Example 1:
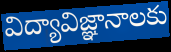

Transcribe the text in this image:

విద్యావిజ్ఞానాలకు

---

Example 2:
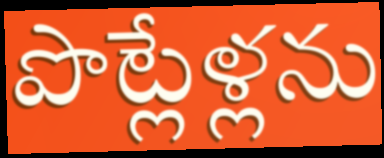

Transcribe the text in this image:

పొట్లేళ్లను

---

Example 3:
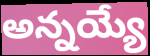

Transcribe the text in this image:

అన్నయ్యే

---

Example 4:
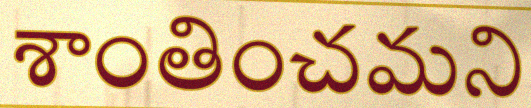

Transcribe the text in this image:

శాంతించమని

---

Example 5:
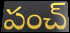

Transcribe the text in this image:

పంచ్